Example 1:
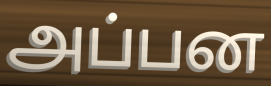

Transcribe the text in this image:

அப்பன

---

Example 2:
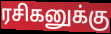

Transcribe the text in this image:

ரசிகனுக்கு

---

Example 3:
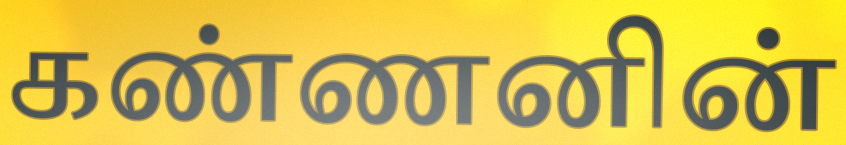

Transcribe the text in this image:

கண்ணனின்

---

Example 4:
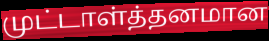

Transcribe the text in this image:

முட்டாள்த்தனமான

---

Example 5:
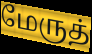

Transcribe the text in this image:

மேருத்